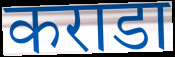
कराडा